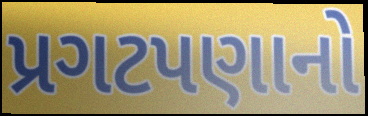
પ્રગટપણાનો